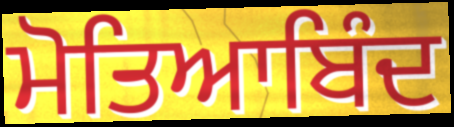
ਮੋਤਿਆਬਿੰਦ